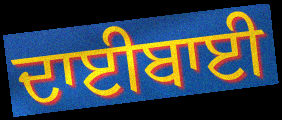
ਦਾਈਬਾਈ